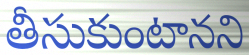
తీసుకుంటానని